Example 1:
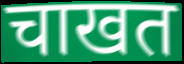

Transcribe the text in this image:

चाखत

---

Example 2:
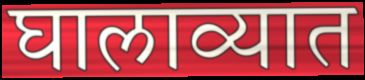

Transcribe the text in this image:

घालाव्यात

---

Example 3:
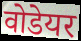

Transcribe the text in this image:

वोडेयर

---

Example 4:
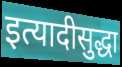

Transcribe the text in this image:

इत्यादीसुद्धा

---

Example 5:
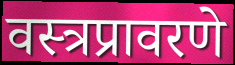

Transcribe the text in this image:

वस्त्रप्रावरणे